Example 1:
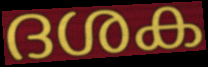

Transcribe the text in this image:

ദശക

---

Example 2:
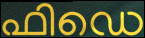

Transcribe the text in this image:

ഫിഡെ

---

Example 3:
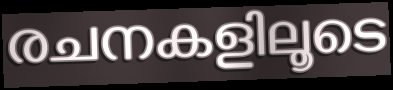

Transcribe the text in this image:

രചനകളിലൂടെ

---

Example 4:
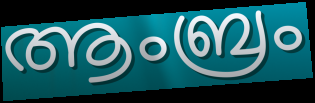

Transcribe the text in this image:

ആംബ്രം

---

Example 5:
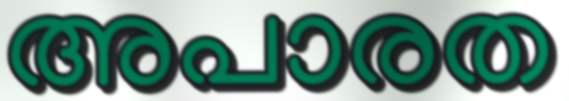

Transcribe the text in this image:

അപാരത